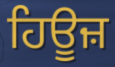
ਹਿਊਜ਼